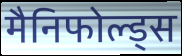
मैनिफोल्ड्स